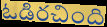
ఓడిరచింది